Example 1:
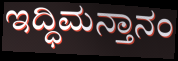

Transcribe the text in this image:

ಇದ್ಧಿಮನ್ತಾನಂ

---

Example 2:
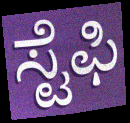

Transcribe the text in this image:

ಸ್ಟೆಫಿ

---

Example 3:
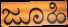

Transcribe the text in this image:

ಜೂಹಿ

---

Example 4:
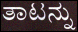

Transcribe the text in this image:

ತಾಟನ್ನು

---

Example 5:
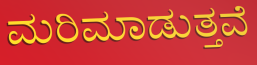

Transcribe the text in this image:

ಮರಿಮಾಡುತ್ತವೆ